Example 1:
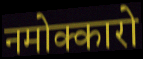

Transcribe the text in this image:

नमोक्कारो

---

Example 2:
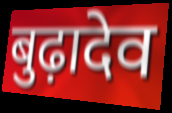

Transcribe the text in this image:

बुढ़ादेव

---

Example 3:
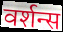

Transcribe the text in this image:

वर्शन्स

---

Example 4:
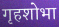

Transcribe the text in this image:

गृहशोभा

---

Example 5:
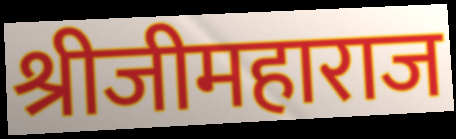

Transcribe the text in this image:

श्रीजीमहाराज